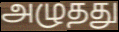
அழுதது